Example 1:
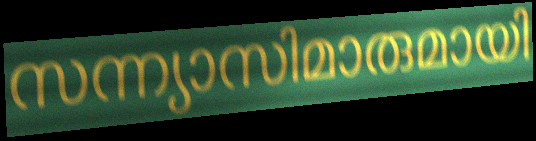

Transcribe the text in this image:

സന്ന്യാസിമാരുമായി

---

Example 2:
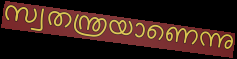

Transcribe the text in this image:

സ്വതന്ത്രയാണെന്നു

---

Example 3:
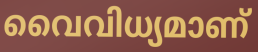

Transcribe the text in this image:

വൈവിധ്യമാണ്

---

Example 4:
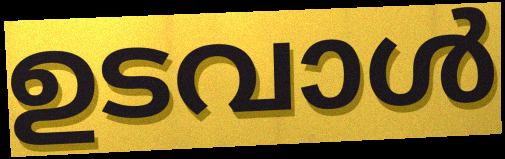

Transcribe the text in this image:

ഉടവാൾ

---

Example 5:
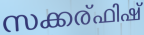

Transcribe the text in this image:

സക്കര്ഫിഷ്